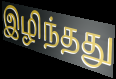
இழிந்தது